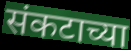
संकटाच्या